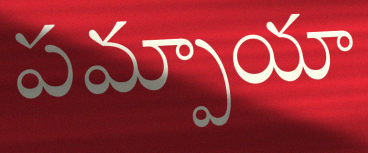
పమ్పాయా